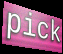
pick